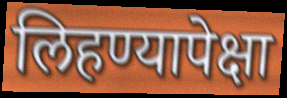
लिहण्यापेक्षा